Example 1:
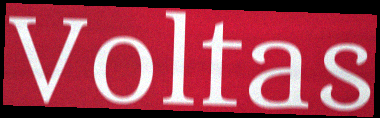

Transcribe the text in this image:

Voltas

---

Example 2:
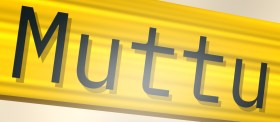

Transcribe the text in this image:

Muttu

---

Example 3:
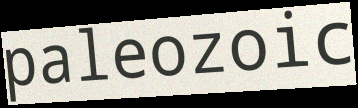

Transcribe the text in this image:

paleozoic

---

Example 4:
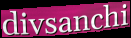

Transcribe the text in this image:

divsanchi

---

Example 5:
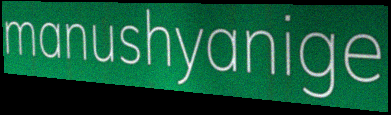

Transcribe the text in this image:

manushyanige